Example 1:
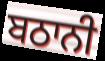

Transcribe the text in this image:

ਬਠਾਨੀ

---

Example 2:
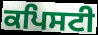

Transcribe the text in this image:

ਕਪਿਸਟੀ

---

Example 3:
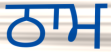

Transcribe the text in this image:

ਠਾਮ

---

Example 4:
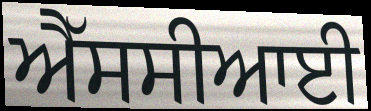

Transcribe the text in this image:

ਐੱਸਸੀਆਈ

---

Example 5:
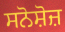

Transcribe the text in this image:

ਸਨੋਸ਼ੋਜ਼